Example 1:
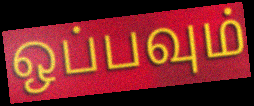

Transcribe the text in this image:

ஒப்பவும்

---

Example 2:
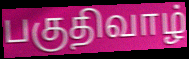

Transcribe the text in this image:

பகுதிவாழ்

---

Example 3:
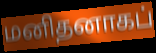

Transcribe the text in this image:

மனிதனாகப்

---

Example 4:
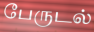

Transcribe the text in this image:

பேருடல்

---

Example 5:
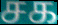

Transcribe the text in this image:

சக